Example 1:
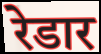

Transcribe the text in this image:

रेडार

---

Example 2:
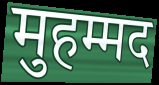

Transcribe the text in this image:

मुहम्मद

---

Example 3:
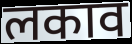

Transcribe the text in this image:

लकाव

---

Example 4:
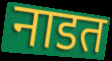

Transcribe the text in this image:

नाडत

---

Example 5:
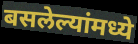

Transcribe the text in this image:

बसलेल्यांमध्ये